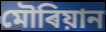
মৌৰিয়ান